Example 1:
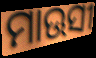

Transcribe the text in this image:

ମାଊସୀ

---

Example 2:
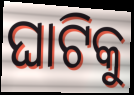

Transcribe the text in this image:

ଘାଟିକୁ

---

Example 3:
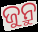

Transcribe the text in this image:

ଜୁନ୍ରୁ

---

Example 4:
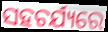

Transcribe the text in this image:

ସହଚର୍ଯ୍ୟରେ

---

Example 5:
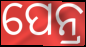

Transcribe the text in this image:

ପେନ୍ର